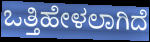
ಒತ್ತಿಹೇಳಲಾಗಿದೆ